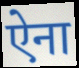
ऐना